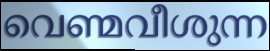
വെണ്മവീശുന്ന